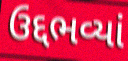
ઉદ્દભવ્યાં